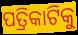
ପତ୍ରିକାଟିକୁ